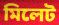
মিলেট